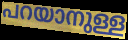
പറയാനുള്ള